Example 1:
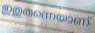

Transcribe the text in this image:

ഇതുതന്നെയാണ്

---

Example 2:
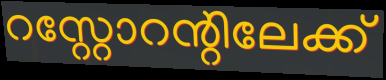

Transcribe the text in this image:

റസ്റ്റോറന്റിലേക്ക്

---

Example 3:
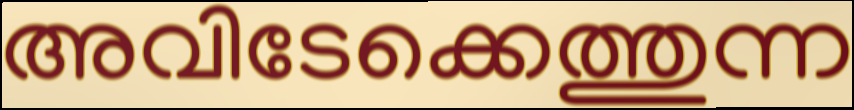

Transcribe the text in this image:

അവിടേക്കെത്തുന്ന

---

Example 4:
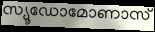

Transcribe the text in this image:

സ്യൂഡോമോണാസ്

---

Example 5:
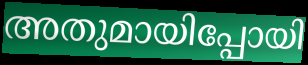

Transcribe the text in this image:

അതുമായിപ്പോയി